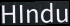
HIndu